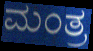
ಮಂತ್ರ